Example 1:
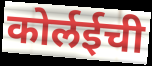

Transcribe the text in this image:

कोर्लईची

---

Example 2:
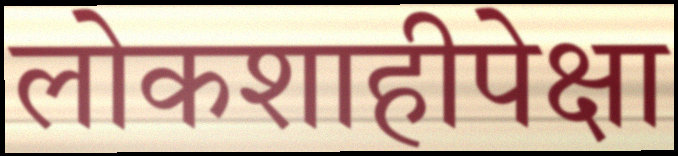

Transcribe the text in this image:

लोकशाहीपेक्षा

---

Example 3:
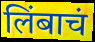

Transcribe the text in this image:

लिंबाचं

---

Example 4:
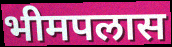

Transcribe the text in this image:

भीमपलास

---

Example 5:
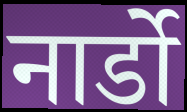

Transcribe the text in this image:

नार्डो